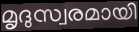
മൃദുസ്വരമായി